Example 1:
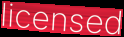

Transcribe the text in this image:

licensed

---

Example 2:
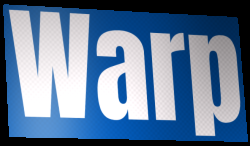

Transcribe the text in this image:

Warp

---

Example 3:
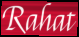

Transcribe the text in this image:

Rahat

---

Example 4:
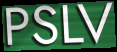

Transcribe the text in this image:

PSLV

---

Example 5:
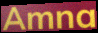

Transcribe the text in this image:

Amna